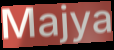
Majya